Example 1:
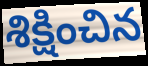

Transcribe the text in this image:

శిక్షించిన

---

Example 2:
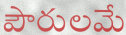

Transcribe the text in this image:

పౌరులమే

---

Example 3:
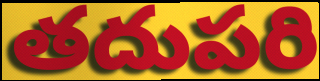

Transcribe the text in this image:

తదుపరి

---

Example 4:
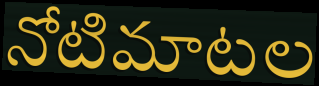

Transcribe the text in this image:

నోటిమాటల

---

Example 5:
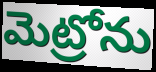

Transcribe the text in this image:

మెట్రోను